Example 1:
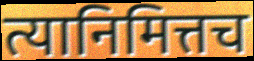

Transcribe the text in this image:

त्यानिमित्तच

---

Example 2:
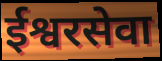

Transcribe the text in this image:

ईश्वरसेवा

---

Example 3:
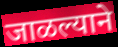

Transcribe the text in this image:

जाळल्याने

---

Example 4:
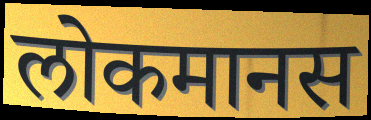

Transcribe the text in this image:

लोकमानस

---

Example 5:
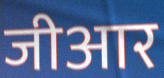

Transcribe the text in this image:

जीआर